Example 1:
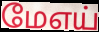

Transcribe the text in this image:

மேஎய்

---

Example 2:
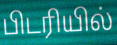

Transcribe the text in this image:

பிடரியில்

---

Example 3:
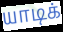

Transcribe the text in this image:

யாடிக்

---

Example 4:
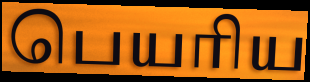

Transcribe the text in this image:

பெயரிய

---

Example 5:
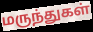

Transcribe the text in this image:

மருந்துகள்